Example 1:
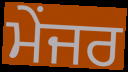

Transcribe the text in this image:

ਮੇਂਜਰ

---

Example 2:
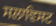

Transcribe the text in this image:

ਸਲਾਵਿਸਟ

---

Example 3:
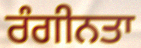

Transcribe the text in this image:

ਰੰਗੀਨਤਾ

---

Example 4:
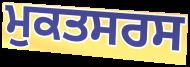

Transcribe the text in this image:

ਮੁਕਤਸਰਸ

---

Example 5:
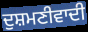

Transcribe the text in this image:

ਦੁਸ਼ਮਣੀਵਾਦੀ